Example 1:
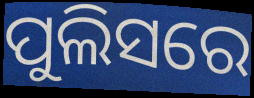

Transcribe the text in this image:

ପୁଲିସରେ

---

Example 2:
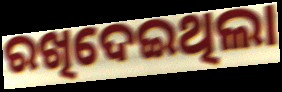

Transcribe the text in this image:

ରଖିଦେଇଥିଲା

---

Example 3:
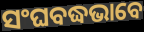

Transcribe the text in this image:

ସଂଘବଦ୍ଧଭାବେ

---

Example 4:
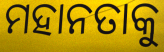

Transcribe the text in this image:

ମହାନତାକୁ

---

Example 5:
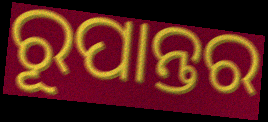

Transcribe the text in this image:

ରୂପାନ୍ତର